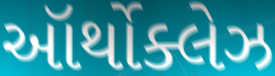
ઑર્થોક્લેઝ